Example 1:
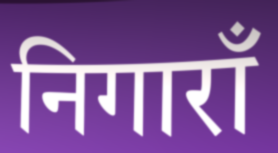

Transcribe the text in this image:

निगाराँ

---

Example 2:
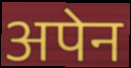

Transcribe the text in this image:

अपेन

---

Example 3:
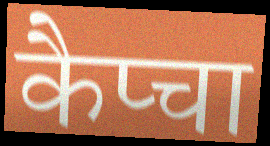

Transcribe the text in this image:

कैप्चा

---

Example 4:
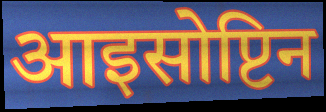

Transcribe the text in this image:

आइसोप्टिन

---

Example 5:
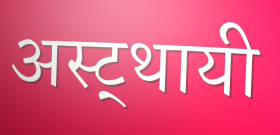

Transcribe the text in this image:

अस्ट्थायी